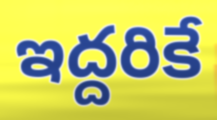
ఇద్దరికే